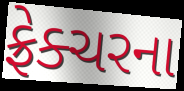
ફ્રેક્ચરના